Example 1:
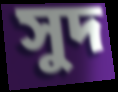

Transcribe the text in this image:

সুদ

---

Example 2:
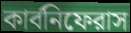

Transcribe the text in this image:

কার্বনিফেরাস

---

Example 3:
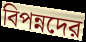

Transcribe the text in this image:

বিপন্নদের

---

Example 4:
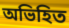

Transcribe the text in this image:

অভিহিত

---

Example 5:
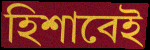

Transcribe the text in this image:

হিশাবেই